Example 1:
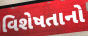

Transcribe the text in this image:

વિશેષતાનો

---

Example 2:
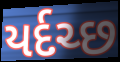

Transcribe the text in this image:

યર્દચ્છ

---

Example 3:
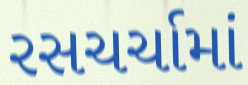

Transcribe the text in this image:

રસચર્ચામાં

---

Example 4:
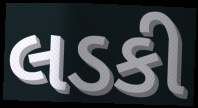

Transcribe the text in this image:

લડકી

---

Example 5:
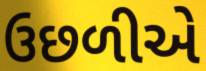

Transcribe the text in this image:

ઉછળીએ